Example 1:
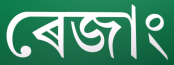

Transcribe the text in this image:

ৰেজাং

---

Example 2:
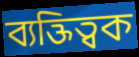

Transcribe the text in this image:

ব্যক্তিত্বক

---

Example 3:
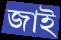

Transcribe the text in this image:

জাই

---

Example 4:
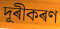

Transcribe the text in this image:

দূৰীকৰণ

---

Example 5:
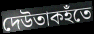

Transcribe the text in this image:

দেউতাকহঁতে